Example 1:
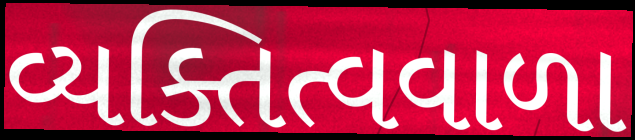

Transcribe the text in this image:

વ્યક્તિત્વવાળા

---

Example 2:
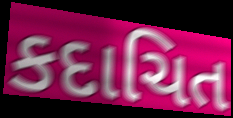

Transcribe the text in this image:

કદાચિત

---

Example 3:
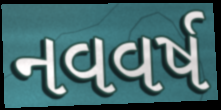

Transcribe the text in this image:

નવવર્ષ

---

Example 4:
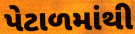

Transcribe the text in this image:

પેટાળમાંથી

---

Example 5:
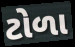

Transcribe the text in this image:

ટોળા